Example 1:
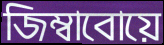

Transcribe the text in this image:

জিম্বাবোয়ে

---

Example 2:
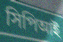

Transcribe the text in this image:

সিপিআই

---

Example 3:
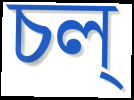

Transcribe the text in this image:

চল্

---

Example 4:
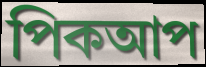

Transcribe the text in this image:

পিকআপ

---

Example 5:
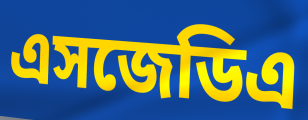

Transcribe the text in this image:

এসজেডিএ